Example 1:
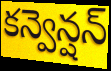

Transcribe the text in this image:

కన్వెన్షన్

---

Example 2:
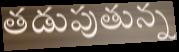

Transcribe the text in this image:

తడుపుతున్న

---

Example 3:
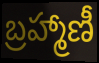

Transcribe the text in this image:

బ్రహ్మాణీ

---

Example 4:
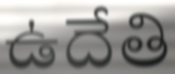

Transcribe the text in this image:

ఉదేతి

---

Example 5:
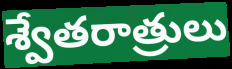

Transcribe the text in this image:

శ్వేతరాత్రులు